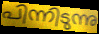
പിന്നിടുന്നു